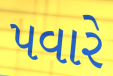
પવારે